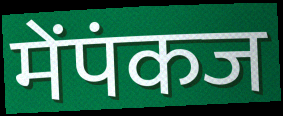
मेंपंकज